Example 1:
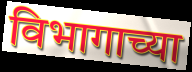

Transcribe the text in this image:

विभागाच्या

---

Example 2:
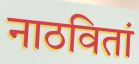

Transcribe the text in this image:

नाठवितां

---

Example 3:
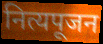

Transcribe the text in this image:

नित्यपूजन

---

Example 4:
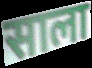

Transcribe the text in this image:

साला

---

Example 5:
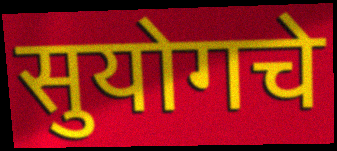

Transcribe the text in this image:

सुयोगचे